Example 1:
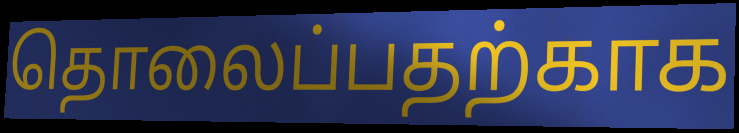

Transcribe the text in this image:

தொலைப்பதற்காக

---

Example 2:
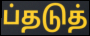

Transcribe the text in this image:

ப்தடுத்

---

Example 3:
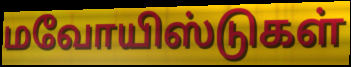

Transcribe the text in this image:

மவோயிஸ்டுகள்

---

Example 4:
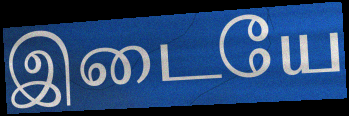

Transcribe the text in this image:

இடையே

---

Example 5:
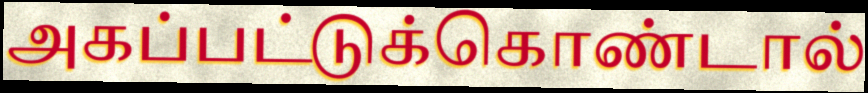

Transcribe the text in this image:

அகப்பட்டுக்கொண்டால்